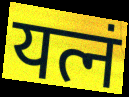
यत्नं